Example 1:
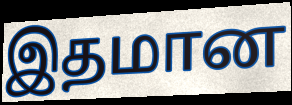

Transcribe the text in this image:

இதமான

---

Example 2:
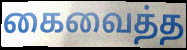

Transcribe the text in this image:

கைவைத்த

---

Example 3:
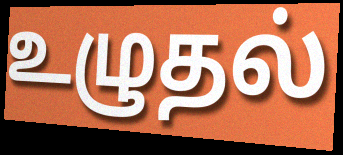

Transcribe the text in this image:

உழுதல்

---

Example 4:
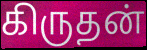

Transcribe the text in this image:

கிருதன்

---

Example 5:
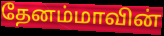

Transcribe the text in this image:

தேனம்மாவின்